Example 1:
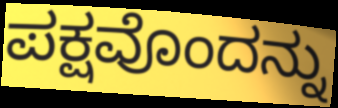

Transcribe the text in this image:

ಪಕ್ಷವೊಂದನ್ನು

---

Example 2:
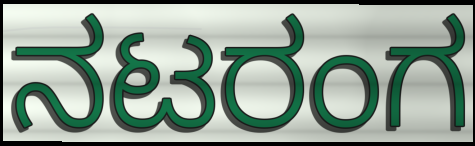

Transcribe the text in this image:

ನಟರಂಗ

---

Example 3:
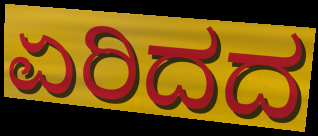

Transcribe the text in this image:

ಏರಿದದ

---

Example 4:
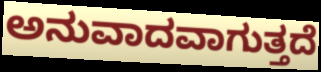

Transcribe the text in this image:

ಅನುವಾದವಾಗುತ್ತದೆ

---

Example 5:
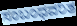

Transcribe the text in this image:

ಸಂಬಂಧವರಿತ